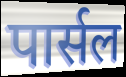
पार्सल